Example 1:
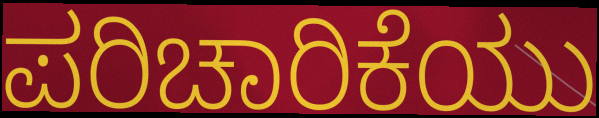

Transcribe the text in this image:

ಪರಿಚಾರಿಕೆಯು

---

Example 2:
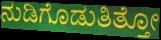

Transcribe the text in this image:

ನುಡಿಗೊಡುತಿತ್ತೋ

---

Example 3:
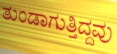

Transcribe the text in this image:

ತುಂಡಾಗುತ್ತಿದ್ದವು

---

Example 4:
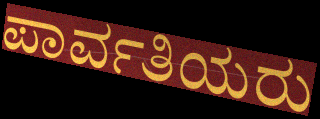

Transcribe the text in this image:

ಪಾರ್ವತಿಯರು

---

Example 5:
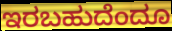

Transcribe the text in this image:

ಇರಬಹುದೆಂದೂ